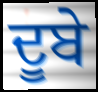
ਦੂਬੇ